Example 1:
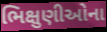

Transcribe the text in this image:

ભિક્ષુણીઓના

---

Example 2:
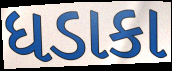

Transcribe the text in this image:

ધડાકા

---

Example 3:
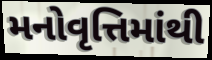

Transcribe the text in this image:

મનોવૃત્તિમાંથી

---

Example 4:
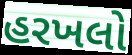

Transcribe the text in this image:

હરખલો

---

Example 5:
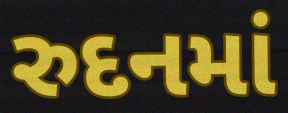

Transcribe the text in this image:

રુદનમાં